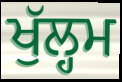
ਖੁੱਲ੍ਹਮ